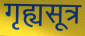
गृह्यसूत्र